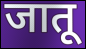
जातू